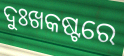
ଦୁଃଖକଷ୍ଟରେ